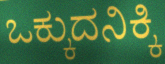
ಒಕ್ಕುದನಿಕ್ಕಿ